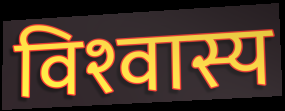
विश्वास्य